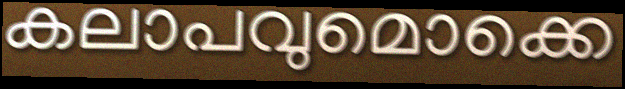
കലാപവുമൊക്കെ